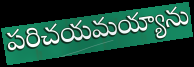
పరిచయమయ్యాను